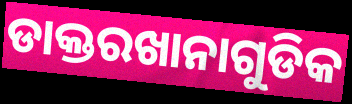
ଡାକ୍ତରଖାନାଗୁଡିକ